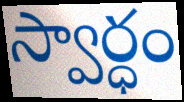
స్వార్ధం